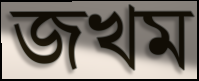
জখম